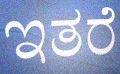
ಇತರೆ